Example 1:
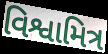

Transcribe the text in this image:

વિશ્વામિત્ર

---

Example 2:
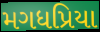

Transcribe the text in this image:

મગધપ્રિયા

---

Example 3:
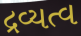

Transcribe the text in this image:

દ્રવ્યત્વ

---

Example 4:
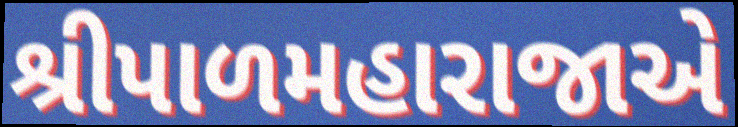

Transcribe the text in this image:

શ્રીપાળમહારાજાએ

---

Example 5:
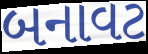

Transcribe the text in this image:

બનાવટ